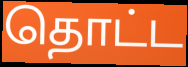
தொட்ட